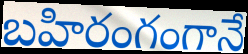
బహిరంగంగానే